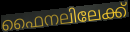
ഫൈനലിലേക്ക്